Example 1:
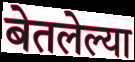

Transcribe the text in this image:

बेतलेल्या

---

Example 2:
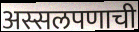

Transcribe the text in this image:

अस्सलपणाची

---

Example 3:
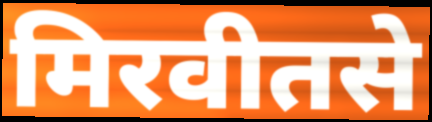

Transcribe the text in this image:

मिरवीतसे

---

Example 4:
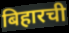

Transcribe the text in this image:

बिहारची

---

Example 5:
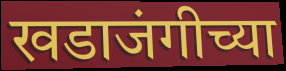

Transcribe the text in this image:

खडाजंगीच्या